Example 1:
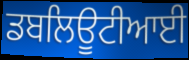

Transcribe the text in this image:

ਡਬਲਿਊਟੀਆਈ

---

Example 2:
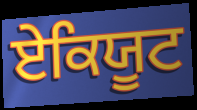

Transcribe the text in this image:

ਏਕਿਯੂਟ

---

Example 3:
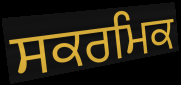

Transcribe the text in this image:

ਸਕਰਮਿਕ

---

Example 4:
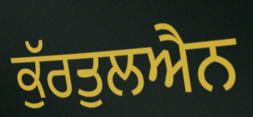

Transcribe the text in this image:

ਕੁੱਰਤੁਲਐਨ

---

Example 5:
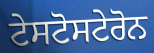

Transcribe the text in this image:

ਟੇਸਟੋਸਟੇਰੋਨ